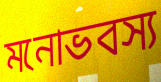
মনোভবস্য